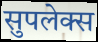
सुपलेक्स